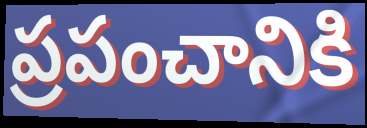
ప్రపంచానికి